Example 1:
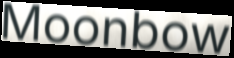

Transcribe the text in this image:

Moonbow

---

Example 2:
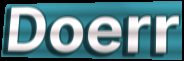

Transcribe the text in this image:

Doerr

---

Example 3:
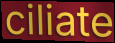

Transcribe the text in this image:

ciliate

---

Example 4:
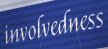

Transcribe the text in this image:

involvedness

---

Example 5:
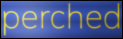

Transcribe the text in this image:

perched